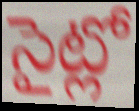
సైట్లో